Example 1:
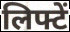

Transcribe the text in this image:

लिफ्टें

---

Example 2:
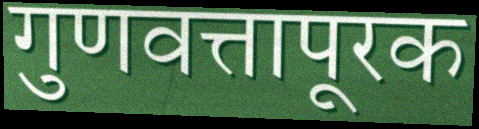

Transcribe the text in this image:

गुणवत्तापूरक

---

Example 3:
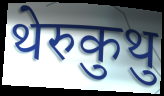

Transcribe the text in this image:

थेरुकुथु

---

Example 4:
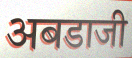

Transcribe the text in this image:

अबडाजी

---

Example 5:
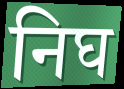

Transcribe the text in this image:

निघ